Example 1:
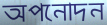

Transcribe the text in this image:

অপনোদন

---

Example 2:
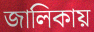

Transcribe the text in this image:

জালিকায়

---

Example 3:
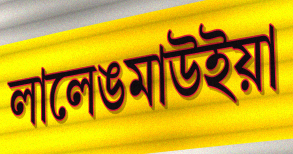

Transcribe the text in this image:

লালেঙমাউইয়া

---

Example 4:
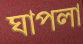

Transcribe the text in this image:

ঘাপলা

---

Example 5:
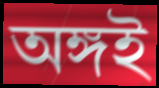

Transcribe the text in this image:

অঙ্গই